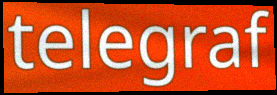
telegraf